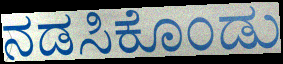
ನಡಸಿಕೊಂಡು